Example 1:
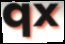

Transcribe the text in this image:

qx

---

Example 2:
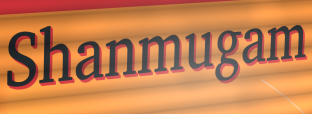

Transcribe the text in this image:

Shanmugam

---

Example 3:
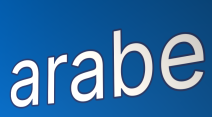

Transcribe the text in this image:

arabe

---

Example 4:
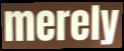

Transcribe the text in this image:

merely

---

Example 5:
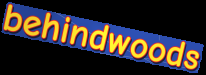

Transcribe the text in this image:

behindwoods